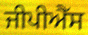
ਜੀਪੀਐੱਸ